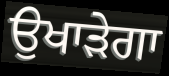
ਉਖਾੜੇਗਾ